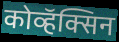
कोव्हॅक्सिन